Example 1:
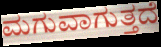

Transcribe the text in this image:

ಮಗುವಾಗುತ್ತದೆ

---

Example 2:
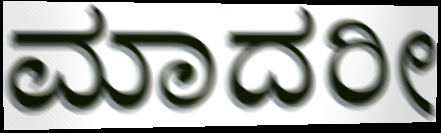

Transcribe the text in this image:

ಮಾದರೀ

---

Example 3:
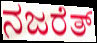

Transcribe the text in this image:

ನಜರೆತ್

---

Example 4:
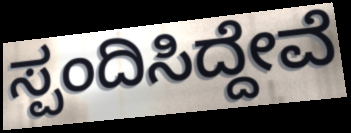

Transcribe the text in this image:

ಸ್ಪಂದಿಸಿದ್ದೇವೆ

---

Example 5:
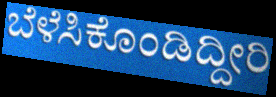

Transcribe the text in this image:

ಬೆಳೆಸಿಕೊಂಡಿದ್ದೀರಿ